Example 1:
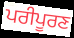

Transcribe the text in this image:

ਪਰੀਪੂਰਣ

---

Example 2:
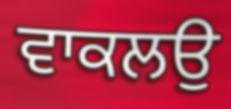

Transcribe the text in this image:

ਵਾਕਲਉ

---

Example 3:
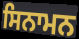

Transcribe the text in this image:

ਸਿਨਾਮਨ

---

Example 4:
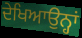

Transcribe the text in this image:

ਦੇਖਿਆਉਨ੍ਹਾਂ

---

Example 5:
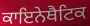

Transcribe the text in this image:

ਕਾਇਨੇਥੈਟਿਕ